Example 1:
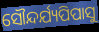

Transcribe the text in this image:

ସୌନ୍ଦର୍ଯ୍ୟପିପାସୁ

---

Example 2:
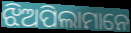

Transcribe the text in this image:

ଝିଅପିଲାମାନେ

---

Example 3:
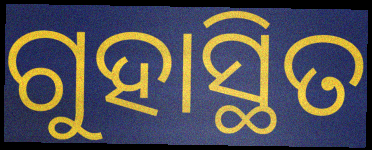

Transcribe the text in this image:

ଗୁହାସ୍ଥିତ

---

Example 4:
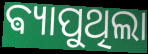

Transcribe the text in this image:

ଵ୍ୟାପୁଥିଲା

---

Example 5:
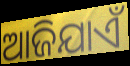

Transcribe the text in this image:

ଆଜିଯାଏଁ